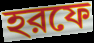
হরফে